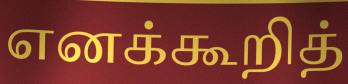
எனக்கூறித்